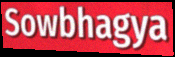
Sowbhagya